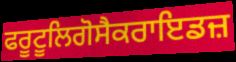
ਫਰੂਟੂਲਿਗੋਸੈਕਰਾਇਡਜ਼